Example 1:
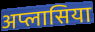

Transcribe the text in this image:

अप्लासिया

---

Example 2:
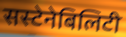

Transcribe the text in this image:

सस्टेनेबिलिटी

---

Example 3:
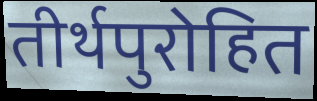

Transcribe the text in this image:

तीर्थपुरोहित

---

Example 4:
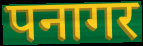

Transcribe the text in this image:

पनागर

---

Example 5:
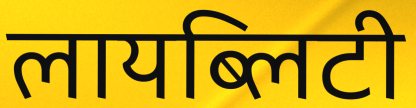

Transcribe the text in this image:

लायब्लिटी